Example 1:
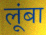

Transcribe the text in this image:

लूंबा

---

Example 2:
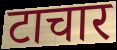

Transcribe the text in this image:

टाचार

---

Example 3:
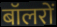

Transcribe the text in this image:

बॉलरों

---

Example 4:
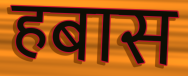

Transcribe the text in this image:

हबास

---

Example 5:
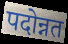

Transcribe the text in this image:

पदोन्नत